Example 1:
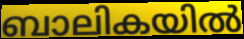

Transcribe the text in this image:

ബാലികയിൽ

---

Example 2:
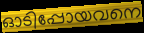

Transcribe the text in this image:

ഓടിപ്പോയവനെ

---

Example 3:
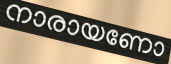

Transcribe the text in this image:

നാരായണോ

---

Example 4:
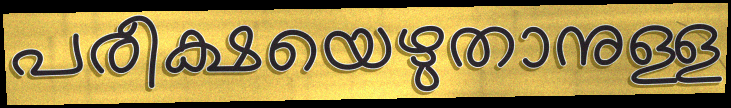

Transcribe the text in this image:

പരീക്ഷയെഴുതാനുള്ള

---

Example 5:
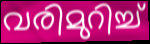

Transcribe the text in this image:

വരിമുറിച്ച്